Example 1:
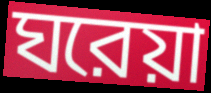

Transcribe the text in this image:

ঘরেয়া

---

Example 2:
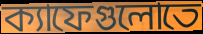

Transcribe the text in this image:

ক্যাফেগুলোতে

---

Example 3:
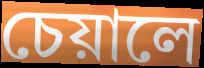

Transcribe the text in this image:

চেয়ালে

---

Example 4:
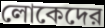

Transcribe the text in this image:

লোকেদের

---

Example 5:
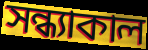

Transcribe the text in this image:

সন্ধ্যাকাল